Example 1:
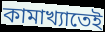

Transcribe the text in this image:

কামাখ্যাতেই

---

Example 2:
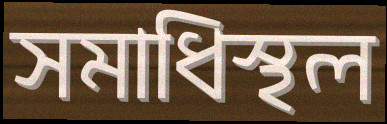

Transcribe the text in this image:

সমাধিস্থল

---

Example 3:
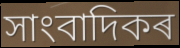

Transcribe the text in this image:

সাংবাদিকৰ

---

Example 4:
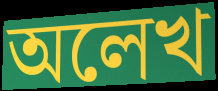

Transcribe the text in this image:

অলেখ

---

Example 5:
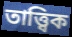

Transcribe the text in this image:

তাত্ত্বিক